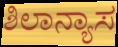
ಶಿಲಾನ್ಯಾಸ